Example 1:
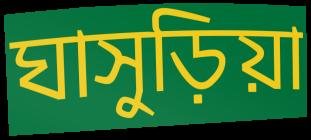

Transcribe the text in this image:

ঘাসুড়িয়া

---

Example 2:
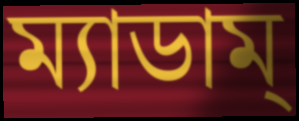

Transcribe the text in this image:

ম্যাডাম্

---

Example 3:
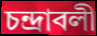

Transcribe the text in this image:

চন্দ্রাবলী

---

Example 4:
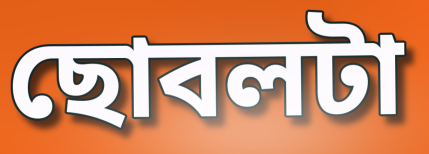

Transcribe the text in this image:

ছোবলটা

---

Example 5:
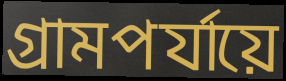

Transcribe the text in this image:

গ্রামপর্যায়ে